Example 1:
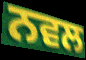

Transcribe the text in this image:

ਨਵਲ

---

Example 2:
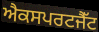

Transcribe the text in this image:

ਐਕਸਪਰਟਜੈੱਟ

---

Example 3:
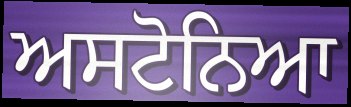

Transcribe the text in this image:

ਅਸਟੋਨਿਆ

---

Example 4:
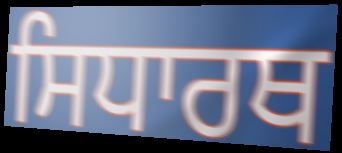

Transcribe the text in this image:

ਸਿਧਾਰਥ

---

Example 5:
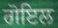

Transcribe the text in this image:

ਗੋਇਲ